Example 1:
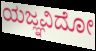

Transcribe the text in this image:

ಯಜ್ಞವಿದೋ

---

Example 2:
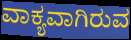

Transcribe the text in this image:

ವಾಕ್ಯವಾಗಿರುವ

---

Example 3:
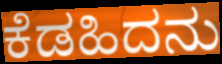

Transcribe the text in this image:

ಕೆಡಹಿದನು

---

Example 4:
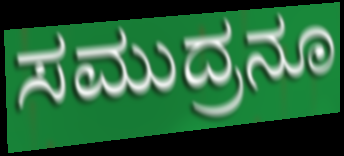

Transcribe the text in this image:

ಸಮುದ್ರನೂ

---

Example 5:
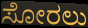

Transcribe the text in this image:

ಸೋರಲು